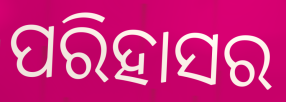
ପରିହାସର